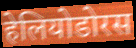
हेलियोडोरस